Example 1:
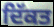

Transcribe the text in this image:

ਦਿੱਕਤ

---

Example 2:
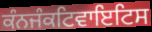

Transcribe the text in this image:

ਕੰਨਜੰਕਟਿਵਾਇਟਿਸ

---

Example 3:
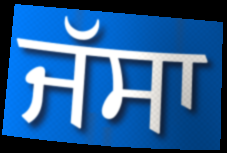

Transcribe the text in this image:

ਜੱਸਾ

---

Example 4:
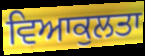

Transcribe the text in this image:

ਵਿਆਕੁਲਤਾ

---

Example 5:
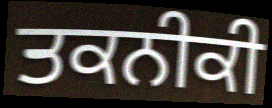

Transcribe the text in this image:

ਤਕਨੀਕੀ